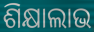
ଶିକ୍ଷାଲାଭ